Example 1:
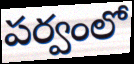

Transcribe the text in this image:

పర్వంలో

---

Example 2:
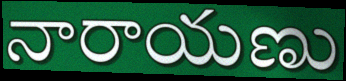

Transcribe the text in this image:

నారాయణు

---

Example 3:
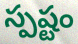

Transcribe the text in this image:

స్పష్టం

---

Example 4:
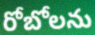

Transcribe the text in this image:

రోబోలను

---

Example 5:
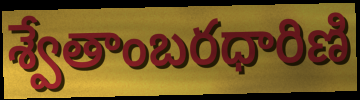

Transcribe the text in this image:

శ్వేతాంబరధారిణి